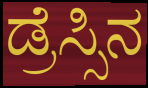
ಡ್ರೆಸ್ಸಿನ